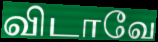
விடாவே